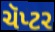
ચૅપ્ટર